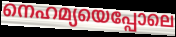
നെഹമ്യയെപ്പോലെ